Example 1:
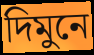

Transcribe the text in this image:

দিমুনে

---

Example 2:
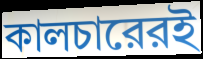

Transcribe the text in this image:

কালচারেরই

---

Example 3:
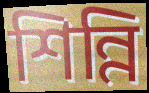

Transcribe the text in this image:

শিন্নি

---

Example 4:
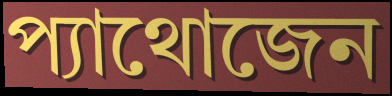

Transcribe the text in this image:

প্যাথোজেন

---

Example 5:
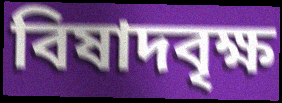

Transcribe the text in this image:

বিষাদবৃক্ষ